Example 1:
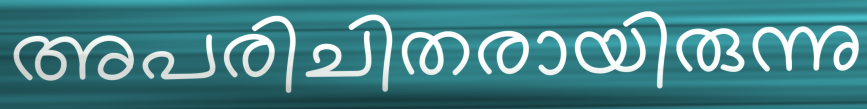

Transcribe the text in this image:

അപരിചിതരായിരുന്നു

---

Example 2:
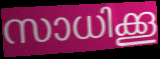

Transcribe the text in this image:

സാധിക്കൂ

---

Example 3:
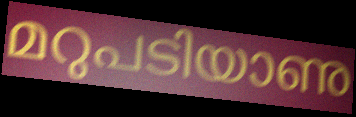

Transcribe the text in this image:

മറുപടിയാണു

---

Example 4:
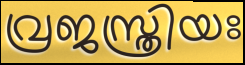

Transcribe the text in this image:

വ്രജസ്ത്രിയഃ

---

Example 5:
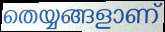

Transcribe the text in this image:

തെയ്യങ്ങളാണ്